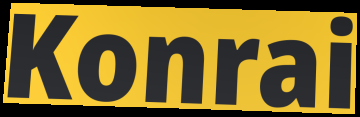
Konrai